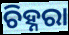
ଚିହ୍ନରା